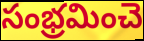
సంభ్రమించె